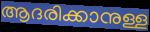
ആദരിക്കാനുള്ള